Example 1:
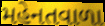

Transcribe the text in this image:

મહેનતવાળા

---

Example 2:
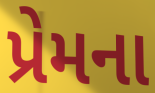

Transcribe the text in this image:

પ્રેમના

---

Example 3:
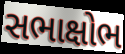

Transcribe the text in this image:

સભાક્ષોભ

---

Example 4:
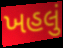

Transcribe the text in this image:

ખહલું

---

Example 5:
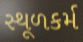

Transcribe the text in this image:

સ્થૂળકર્મ